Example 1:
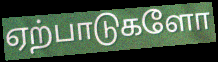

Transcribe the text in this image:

ஏற்பாடுகளோ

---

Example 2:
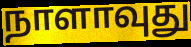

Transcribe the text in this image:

நாளாவுது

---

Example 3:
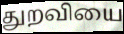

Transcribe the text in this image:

துறவியை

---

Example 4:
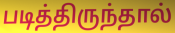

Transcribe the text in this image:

படித்திருந்தால்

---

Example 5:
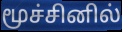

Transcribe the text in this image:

மூச்சினில்